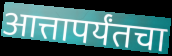
आत्तापर्यंतचा